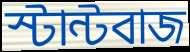
স্টান্টবাজ